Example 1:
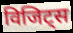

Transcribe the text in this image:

विजिट्स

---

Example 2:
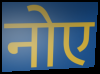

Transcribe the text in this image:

नोए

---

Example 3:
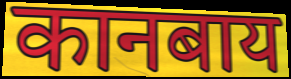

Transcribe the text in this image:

कानबाय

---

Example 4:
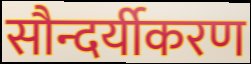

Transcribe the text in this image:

सौन्दर्यीकरण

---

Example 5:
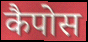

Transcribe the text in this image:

कैपोस